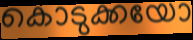
കൊടുക്കയോ